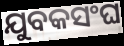
ଯୁବକସଂଘ